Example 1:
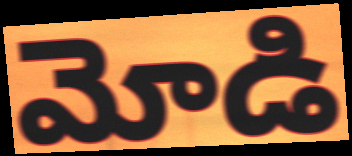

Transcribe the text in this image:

మోడి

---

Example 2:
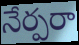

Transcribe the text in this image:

నేర్పరా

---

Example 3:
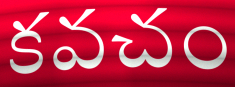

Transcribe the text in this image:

కవచం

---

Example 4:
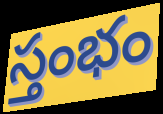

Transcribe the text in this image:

స్తంభం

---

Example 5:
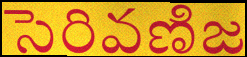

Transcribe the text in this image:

సెరివణిజ